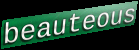
beauteous